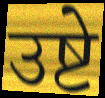
उष्टे